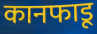
कानफाडू